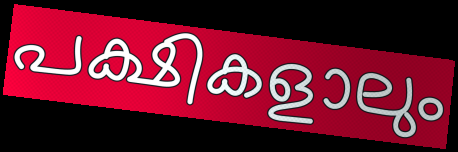
പക്ഷികളാലും